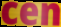
cen